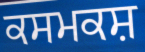
ਕਸਮਕਸ਼